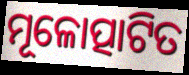
ମୂଳୋତ୍ପାଟିତ